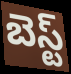
బెస్ట్